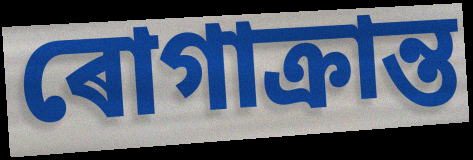
ৰোগাক্ৰান্ত